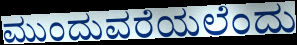
ಮುಂದುವರೆಯಲೆಂದು